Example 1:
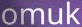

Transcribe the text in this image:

omuk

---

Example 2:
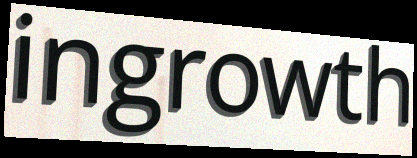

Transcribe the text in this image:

ingrowth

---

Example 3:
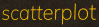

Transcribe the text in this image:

scatterplot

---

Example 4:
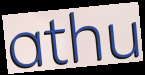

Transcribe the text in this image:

athu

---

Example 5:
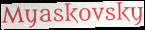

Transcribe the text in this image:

Myaskovsky